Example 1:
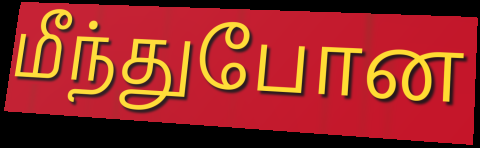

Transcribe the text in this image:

மீந்துபோன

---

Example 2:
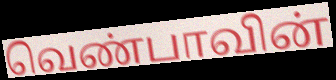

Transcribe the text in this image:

வெண்பாவின்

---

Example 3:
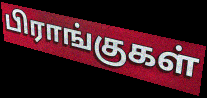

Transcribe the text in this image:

பிராங்குகள்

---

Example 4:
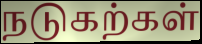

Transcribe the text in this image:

நடுகற்கள்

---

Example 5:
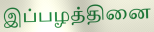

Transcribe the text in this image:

இப்பழத்தினை